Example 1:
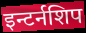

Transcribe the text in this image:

इन्टर्नशिप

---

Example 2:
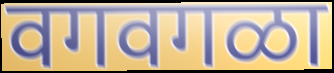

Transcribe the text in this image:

वगवगळा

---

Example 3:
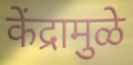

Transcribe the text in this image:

केंद्रामुळे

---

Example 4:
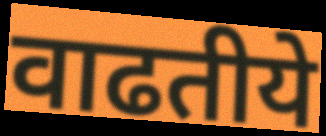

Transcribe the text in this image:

वाढतीये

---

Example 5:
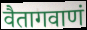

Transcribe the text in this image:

वैतागवाणं